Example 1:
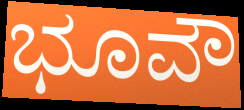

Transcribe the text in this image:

ಭೂವೌ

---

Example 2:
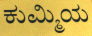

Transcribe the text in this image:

ಕುಮ್ಮಿಯ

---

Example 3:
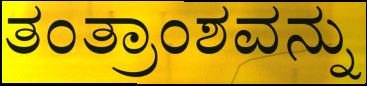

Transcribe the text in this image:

ತಂತ್ರಾಂಶವನ್ನು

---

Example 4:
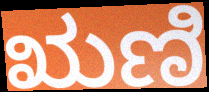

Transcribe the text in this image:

ಋಣಿ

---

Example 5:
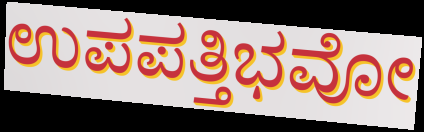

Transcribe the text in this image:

ಉಪಪತ್ತಿಭವೋ